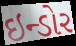
ઇન્ડોર